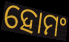
ହୋମଂ